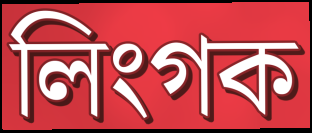
লিংগক